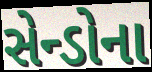
સેન્ડોના